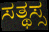
ಸತ್ಥಸ್ಸ